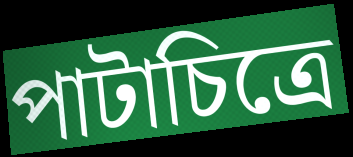
পাটাচিত্রে